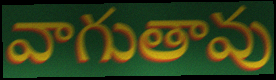
వాగుతావు